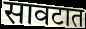
सावटात